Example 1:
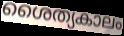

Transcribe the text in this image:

ശൈത്യകാലം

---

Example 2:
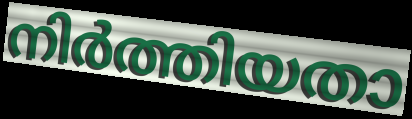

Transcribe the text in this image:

നിർത്തിയതാ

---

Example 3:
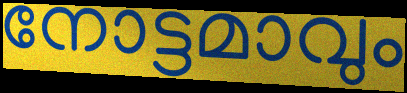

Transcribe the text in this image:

നോട്ടമാവും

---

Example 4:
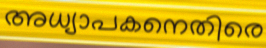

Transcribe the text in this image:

അധ്യാപകനെതിരെ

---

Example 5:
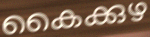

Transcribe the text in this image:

കൈക്കുഴ